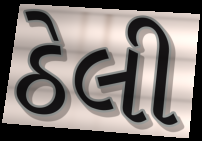
ઠેલી